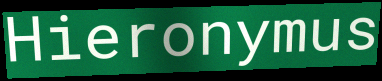
Hieronymus